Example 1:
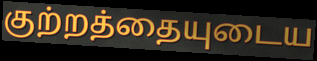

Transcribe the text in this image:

குற்றத்தையுடைய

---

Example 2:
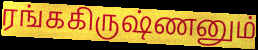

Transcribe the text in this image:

ரங்ககிருஷ்ணனும்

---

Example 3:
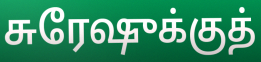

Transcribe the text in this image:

சுரேஷுக்குத்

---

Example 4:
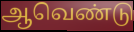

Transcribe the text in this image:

ஆவெண்டு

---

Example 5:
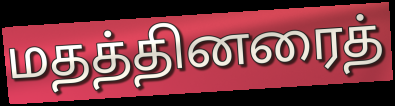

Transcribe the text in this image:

மதத்தினரைத்